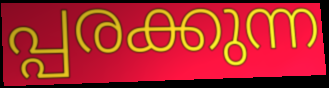
പ്പരക്കുന്ന